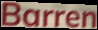
Barren